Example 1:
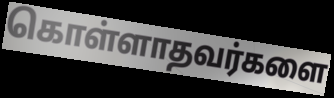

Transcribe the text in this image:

கொள்ளாதவர்களை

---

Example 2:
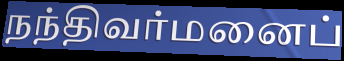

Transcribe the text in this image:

நந்திவர்மனைப்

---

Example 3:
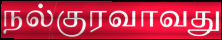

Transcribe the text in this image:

நல்குரவாவது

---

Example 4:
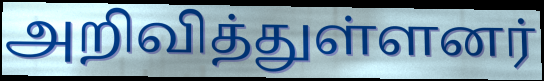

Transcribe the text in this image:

அறிவித்துள்ளனர்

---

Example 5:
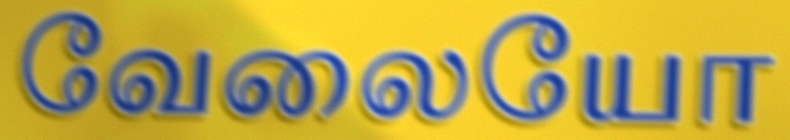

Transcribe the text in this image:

வேலையோ